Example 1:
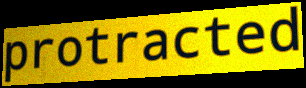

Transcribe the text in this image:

protracted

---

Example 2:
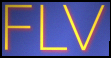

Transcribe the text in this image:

FLV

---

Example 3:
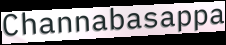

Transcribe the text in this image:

Channabasappa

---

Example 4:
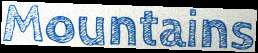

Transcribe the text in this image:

Mountains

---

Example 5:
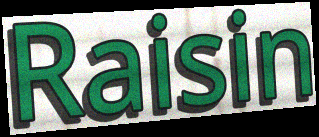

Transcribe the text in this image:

Raisin